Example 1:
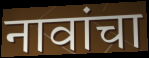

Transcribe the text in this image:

नावांचा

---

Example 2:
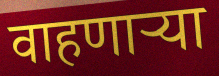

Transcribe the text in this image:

वाहणाऱ्या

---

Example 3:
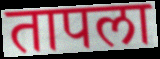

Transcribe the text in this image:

तापला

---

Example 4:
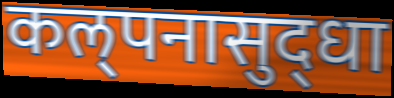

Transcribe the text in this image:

कल्पनासुद्धा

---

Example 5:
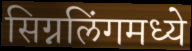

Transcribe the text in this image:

सिग्नलिंगमध्ये